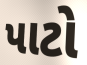
પાટો